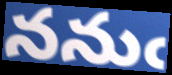
ననుఁ